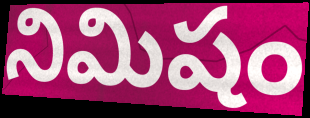
నిమిషం